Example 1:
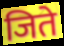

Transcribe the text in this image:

जिते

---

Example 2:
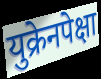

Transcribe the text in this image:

युक्रेनपेक्षा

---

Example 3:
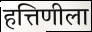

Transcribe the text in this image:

हत्तिणीला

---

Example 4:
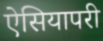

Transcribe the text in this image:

ऐसियापरी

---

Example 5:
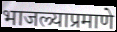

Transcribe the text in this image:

भाजल्याप्रमाणे